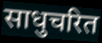
साधुचरित